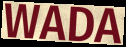
WADA